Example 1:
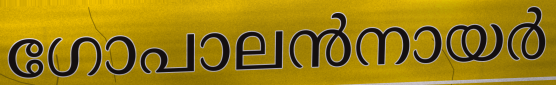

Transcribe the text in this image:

ഗോപാലൻനായർ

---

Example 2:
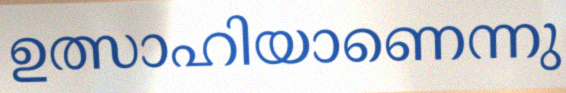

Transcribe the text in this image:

ഉത്സാഹിയാണെന്നു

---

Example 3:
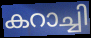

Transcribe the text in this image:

കറാച്ചി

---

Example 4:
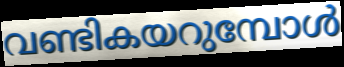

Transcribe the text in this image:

വണ്ടികയറുമ്പോൾ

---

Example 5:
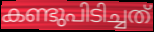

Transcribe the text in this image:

കണ്ടുപിടിച്ചത്